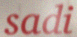
sadi